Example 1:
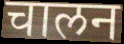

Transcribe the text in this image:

चालन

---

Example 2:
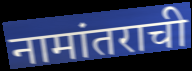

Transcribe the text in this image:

नामांतराची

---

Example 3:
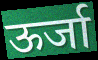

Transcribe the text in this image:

ऊर्जा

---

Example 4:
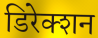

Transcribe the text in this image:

डिरेक्शन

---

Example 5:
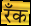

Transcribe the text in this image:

रँक